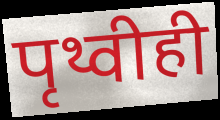
पृथ्वीही